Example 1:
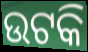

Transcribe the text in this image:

ଉଟକି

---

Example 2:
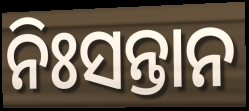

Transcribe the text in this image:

ନିଃସନ୍ତାନ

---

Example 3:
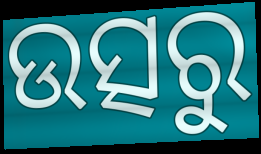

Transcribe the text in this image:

ଉତ୍ସରୁ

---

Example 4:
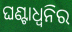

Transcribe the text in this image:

ଘଣ୍ଟାଧ୍ୱନିର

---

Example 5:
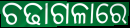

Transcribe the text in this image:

ଚଢାଗଳାରେ